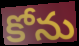
కోను